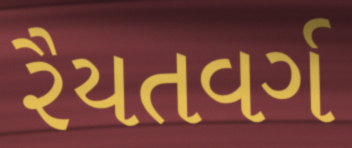
રૈયતવર્ગ